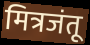
मित्रजंतू